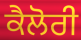
ਕੈਲੋਰੀ